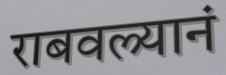
राबवल्यानं